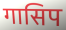
गासिप